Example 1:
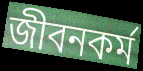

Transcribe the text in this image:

জীবনকর্ম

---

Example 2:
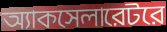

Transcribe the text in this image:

অ্যাকসেলারেটরে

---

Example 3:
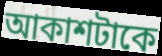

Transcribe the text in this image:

আকাশটাকে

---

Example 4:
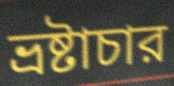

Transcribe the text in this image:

ভ্রষ্টাচার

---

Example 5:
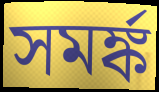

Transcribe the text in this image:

সমর্ঙ্ক